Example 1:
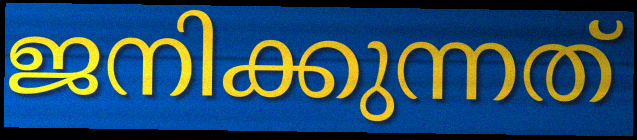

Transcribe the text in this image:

ജനിക്കുന്നത്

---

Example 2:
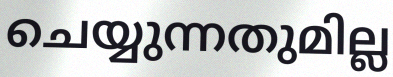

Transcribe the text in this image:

ചെയ്യുന്നതുമില്ല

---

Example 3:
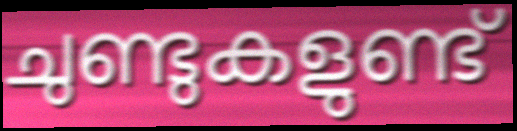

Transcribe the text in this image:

ചുണ്ടുകളുണ്ട്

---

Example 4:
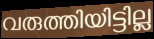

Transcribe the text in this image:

വരുത്തിയിട്ടില്ല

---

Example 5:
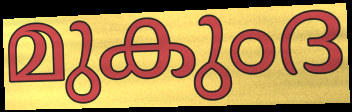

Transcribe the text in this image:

മുകുംദ